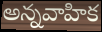
అన్నవాహిక